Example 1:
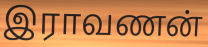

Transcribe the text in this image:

இராவணன்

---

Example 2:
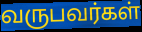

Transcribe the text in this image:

வருபவர்கள்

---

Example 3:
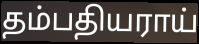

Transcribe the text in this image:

தம்பதியராய்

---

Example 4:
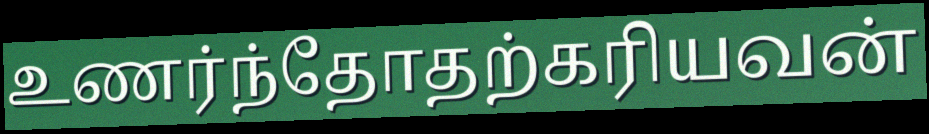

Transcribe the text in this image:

உணர்ந்தோதற்கரியவன்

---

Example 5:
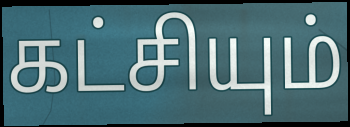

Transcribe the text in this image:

கட்சியும்